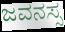
ಜವನಸ್ಸ